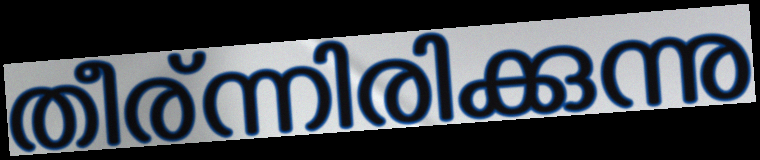
തീര്ന്നിരിക്കുന്നു